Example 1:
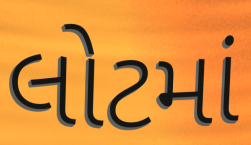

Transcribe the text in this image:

લોટમાં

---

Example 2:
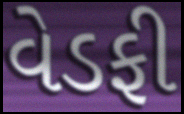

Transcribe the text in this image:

વેડફી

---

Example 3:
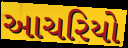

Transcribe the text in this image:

આચરિયો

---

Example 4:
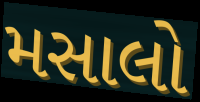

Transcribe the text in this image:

મસાલો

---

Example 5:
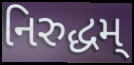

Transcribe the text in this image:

નિરુદ્ધમ્